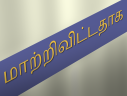
மாற்றிவிட்டதாக